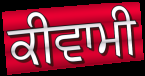
ਕੀਵਾਮੀ